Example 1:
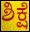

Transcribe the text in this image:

ಶಿಕ್ಷೆ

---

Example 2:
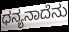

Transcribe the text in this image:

ಧನ್ಯನಾದೆನು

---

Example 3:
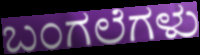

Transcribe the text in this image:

ಬಂಗಲೆಗಳು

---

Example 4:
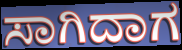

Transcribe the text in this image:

ಸಾಗಿದಾಗ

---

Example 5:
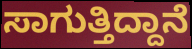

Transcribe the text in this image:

ಸಾಗುತ್ತಿದ್ದಾನೆ